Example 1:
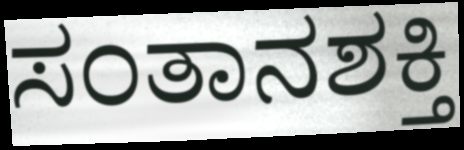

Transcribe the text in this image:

ಸಂತಾನಶಕ್ತಿ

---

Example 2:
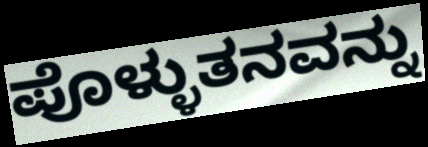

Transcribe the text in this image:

ಪೊಳ್ಳುತನವನ್ನು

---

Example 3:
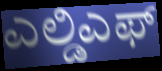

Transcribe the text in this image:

ಎಲ್ಡಿಎಫ್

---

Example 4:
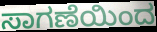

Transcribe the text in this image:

ಸಾಗಣೆಯಿಂದ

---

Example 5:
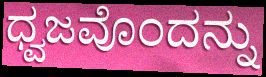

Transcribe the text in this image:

ಧ್ವಜವೊಂದನ್ನು